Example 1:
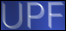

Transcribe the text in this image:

UPF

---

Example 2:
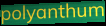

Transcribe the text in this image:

polyanthum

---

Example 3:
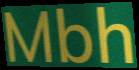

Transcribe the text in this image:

Mbh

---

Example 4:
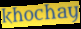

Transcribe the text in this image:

khochay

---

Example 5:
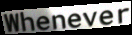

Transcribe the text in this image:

Whenever